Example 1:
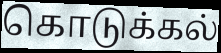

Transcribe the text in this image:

கொடுக்கல்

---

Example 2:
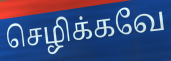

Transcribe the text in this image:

செழிக்கவே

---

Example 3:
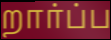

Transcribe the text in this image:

றார்ப்ப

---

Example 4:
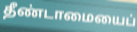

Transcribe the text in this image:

தீண்டாமையைப்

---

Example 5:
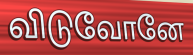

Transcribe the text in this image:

விடுவோனே